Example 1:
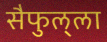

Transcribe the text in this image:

सैफुल्ला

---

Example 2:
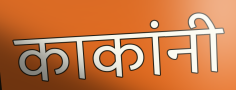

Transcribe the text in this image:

काकांनी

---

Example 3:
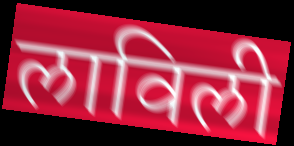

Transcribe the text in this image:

लाविली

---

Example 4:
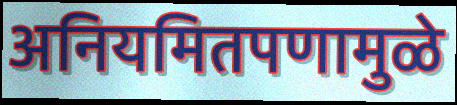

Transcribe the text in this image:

अनियमितपणामुळे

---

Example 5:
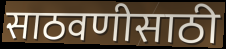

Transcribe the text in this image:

साठवणीसाठी